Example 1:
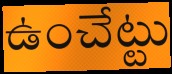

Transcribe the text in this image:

ఉంచేట్టు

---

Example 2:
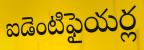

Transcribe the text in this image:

ఐడెంటిఫైయర్ల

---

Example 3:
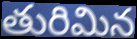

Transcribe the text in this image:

తురిమిన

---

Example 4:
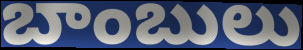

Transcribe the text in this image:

బాంబులు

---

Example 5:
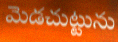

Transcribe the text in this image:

మెడచుట్టును